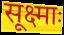
सूक्ष्माः